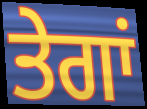
ਤੇਗਾਂ